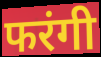
फरंगी